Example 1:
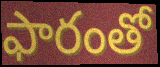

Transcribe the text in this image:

ఫారంతో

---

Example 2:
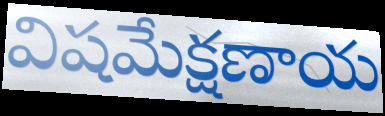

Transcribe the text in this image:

విషమేక్షణాయ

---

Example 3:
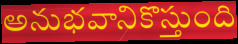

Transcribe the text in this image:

అనుభవానికొస్తుంది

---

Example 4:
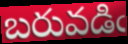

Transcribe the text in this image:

బరువడిఁ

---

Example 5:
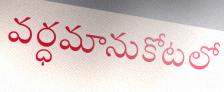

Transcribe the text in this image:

వర్ధమానుకోటలో